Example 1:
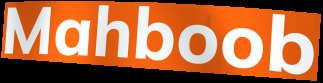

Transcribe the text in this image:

Mahboob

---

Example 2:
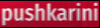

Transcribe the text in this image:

pushkarini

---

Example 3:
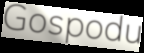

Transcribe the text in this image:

Gospodu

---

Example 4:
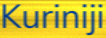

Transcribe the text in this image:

Kuriniji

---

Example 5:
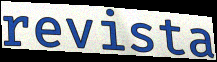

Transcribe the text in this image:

revista